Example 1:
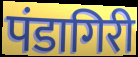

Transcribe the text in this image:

पंडागिरी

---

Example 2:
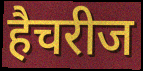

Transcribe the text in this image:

हैचरीज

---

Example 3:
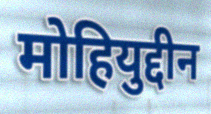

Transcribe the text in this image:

मोहियुद्दीन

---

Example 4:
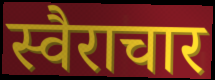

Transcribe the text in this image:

स्वैराचार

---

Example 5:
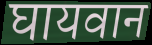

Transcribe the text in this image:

घायवान